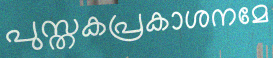
പുസ്തകപ്രകാശനമേ